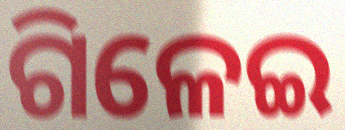
ଗିଳେଇ